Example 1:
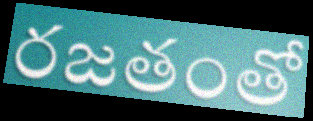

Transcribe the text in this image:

రజతంతో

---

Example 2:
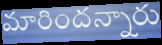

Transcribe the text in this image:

మారిందన్నారు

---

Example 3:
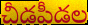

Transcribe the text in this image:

చీడపీడల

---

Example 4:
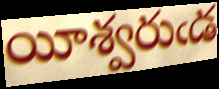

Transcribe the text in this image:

యీశ్వరుఁడ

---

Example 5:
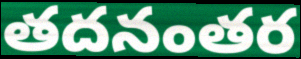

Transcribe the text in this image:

తదనంతర